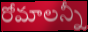
రోమాలన్నీ